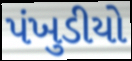
પંખુડીયો